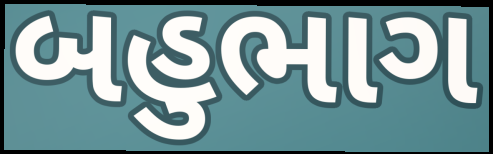
બહુભાગ